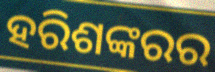
ହରିଶଙ୍କରର